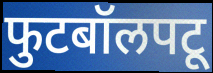
फुटबॉलपटू